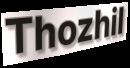
Thozhil